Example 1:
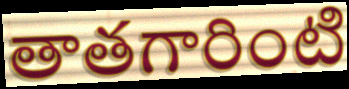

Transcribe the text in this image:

తాతగారింటి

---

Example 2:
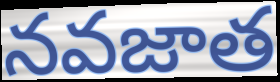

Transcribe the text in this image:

నవజాత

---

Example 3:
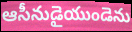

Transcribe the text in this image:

ఆసీనుడైయుండెను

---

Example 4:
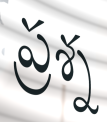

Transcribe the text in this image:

ప్రశ్న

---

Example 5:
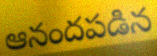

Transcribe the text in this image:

ఆనందపడిన